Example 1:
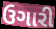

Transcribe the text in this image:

ઉગારી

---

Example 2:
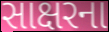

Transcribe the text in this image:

સાક્ષરના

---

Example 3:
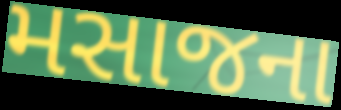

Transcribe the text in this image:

મસાજના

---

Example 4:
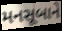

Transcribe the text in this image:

મનસૂબાને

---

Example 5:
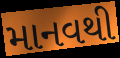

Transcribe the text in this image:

માનવથી